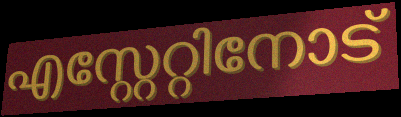
എസ്റ്റേറ്റിനോട്